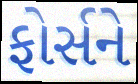
ફોર્સને